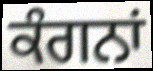
ਕੰਗਨਾਂ